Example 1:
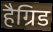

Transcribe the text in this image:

हैग्रिड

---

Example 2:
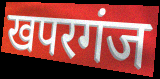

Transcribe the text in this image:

खपरगंज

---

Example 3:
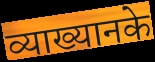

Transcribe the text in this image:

व्याख्यानके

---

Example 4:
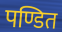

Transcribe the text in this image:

पण्डित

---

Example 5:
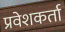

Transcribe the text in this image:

प्रवेशकर्ता